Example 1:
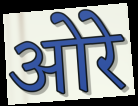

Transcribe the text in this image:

ओरे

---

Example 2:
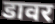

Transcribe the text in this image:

डावर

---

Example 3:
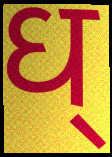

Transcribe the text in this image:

ध्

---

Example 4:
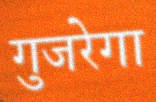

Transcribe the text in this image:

गुजरेगा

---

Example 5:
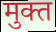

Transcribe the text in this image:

मुक्त